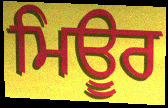
ਮਿਊਰ